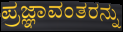
ಪ್ರಜ್ಞಾವಂತರನ್ನು